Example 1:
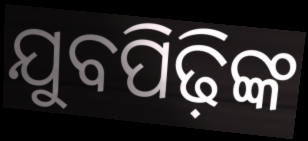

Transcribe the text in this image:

ଯୁବପିଢ଼ିଙ୍କ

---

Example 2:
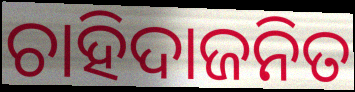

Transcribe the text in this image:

ଚାହିଦାଜନିତ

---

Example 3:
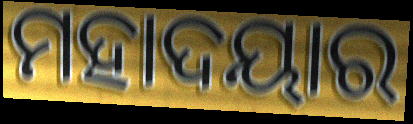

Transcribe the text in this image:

ମହାଦୟାର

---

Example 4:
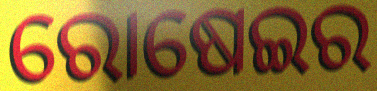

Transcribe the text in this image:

ରୋଷେଇର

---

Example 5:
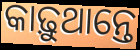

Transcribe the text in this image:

କାଢ଼ୁଥାନ୍ତେ